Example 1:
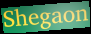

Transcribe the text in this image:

Shegaon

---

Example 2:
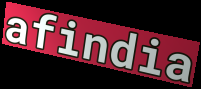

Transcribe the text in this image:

afindia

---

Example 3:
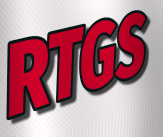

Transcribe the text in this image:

RTGS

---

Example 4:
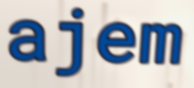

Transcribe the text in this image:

ajem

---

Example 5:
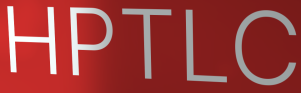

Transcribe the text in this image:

HPTLC